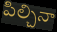
పిల్చినా